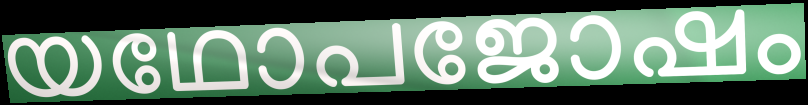
യഥോപജോഷം